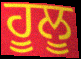
ਹੂਲੂ